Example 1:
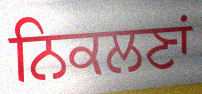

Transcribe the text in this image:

ਨਿਕਲਣਾਂ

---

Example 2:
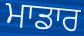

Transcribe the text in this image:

ਮਾਡਾਰ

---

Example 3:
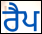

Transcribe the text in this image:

ਰੈਪ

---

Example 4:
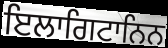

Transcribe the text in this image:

ਇਲਾਗਿਟਾਨਿਨ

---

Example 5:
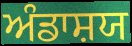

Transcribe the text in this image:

ਅੰਡਾਸ਼ਯ